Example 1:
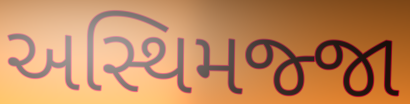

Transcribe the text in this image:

અસ્થિમજ્જા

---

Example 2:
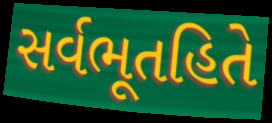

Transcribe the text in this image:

સર્વભૂતહિતે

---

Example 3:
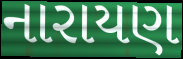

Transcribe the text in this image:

નારાયણ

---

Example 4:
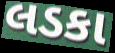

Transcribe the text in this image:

લડકા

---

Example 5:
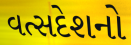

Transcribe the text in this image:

વત્સદેશનો